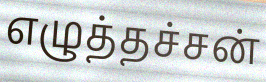
எழுத்தச்சன்